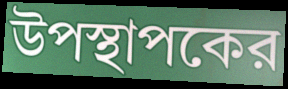
উপস্থাপকের